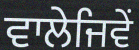
ਵਾਲੇਜਿਵੇਂ